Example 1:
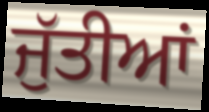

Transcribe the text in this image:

ਜੁੱਤੀਆਂ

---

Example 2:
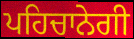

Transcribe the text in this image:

ਪਹਿਚਾਨੇਗੀ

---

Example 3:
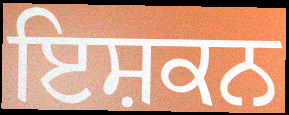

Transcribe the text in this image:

ਇਸ਼ਕਨ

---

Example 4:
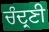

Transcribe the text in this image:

ਚੰਦ੍ਰਣੀ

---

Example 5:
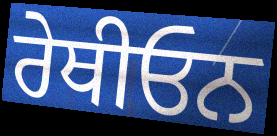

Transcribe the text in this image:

ਰੇਥੀਓਨ